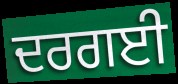
ਦਰਗਈ